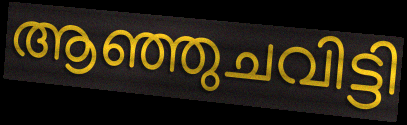
ആഞ്ഞുചവിട്ടി